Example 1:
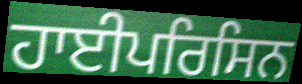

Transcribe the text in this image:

ਹਾਈਪਰਿਸਿਨ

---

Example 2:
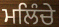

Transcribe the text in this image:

ਮਲਿੰਚੇ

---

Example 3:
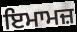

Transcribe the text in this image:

ਇਮਾਮਜ਼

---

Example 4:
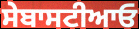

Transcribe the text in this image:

ਸੇਬਾਸਟੀਆਓ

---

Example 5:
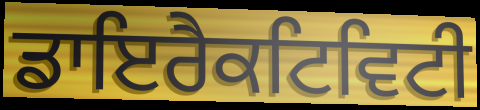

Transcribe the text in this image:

ਡਾਇਰੈਕਟਿਵਿਟੀ